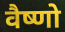
वैष्णो